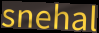
snehal